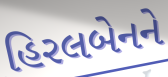
હિરલબેનને